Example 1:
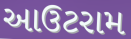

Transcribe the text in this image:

આઉટરામ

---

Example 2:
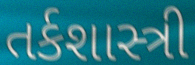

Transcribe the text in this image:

તર્કશાસ્ત્રી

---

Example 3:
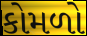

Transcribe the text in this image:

કોમળો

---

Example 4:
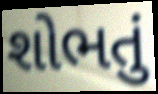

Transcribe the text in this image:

શોભતું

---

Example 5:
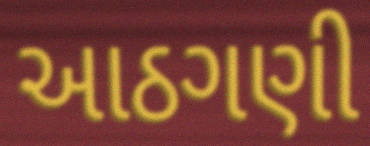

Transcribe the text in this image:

આઠગણી